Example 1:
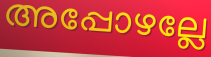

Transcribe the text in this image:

അപ്പോഴല്ലേ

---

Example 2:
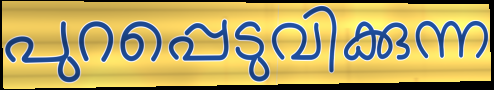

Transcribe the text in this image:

പുറപ്പെടുവിക്കുന്ന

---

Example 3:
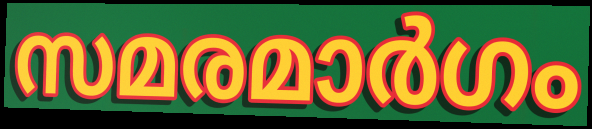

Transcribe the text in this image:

സമരമാർഗം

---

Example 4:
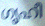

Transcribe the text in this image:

ഗൃഹീ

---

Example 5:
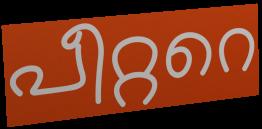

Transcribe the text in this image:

പീറ്ററെ